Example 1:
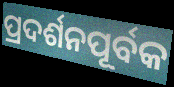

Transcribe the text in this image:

ପ୍ରଦର୍ଶନପୂର୍ବକ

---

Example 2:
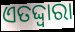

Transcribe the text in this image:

ଏତଦ୍ଦ୍ୱାରା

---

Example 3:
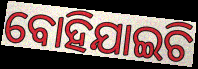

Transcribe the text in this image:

ବୋହିଯାଇଚି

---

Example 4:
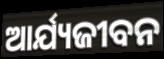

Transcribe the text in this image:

ଆର୍ଯ୍ୟଜୀବନ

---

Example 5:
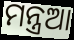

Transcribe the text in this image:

ମନ୍ତ୍ରଆ